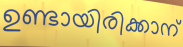
ഉണ്ടായിരിക്കാന്